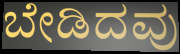
ಬೇಡಿದವು